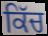
ਕਿੱਚ